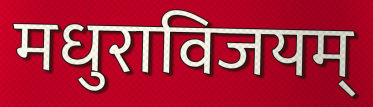
मधुराविजयम्